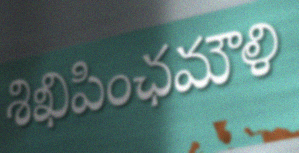
శిఖిపింఛమౌళి